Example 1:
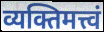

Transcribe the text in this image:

व्यक्तिमत्त्वं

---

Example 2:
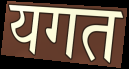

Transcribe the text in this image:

यगत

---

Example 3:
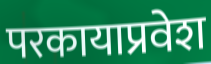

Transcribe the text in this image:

परकायाप्रवेश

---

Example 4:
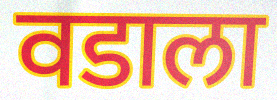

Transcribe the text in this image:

वडाला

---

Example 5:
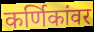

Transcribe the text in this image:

कर्णिकांवर